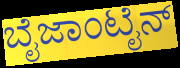
ಬೈಜಾಂಟೈನ್